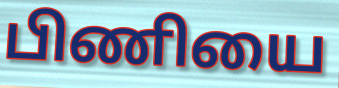
பிணியை